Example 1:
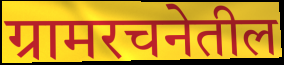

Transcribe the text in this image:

ग्रामरचनेतील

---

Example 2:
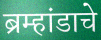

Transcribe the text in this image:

ब्रम्हांडाचे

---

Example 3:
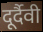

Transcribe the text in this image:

दूर्दैवी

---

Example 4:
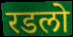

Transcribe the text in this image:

रडलो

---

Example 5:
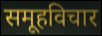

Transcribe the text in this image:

समूहविचार